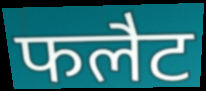
फलैट